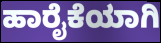
ಹಾರೈಕೆಯಾಗಿ